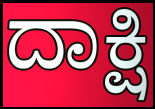
ದಾಕ್ಷಿ